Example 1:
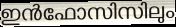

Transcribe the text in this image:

ഇൻഫോസിസിലും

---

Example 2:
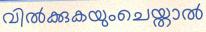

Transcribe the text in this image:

വിൽക്കുകയുംചെയ്താൽ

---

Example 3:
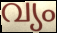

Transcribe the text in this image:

വ്യം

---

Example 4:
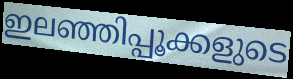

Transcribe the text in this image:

ഇലഞ്ഞിപ്പൂക്കളുടെ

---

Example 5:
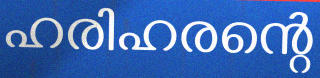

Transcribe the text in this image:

ഹരിഹരന്റെ